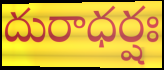
దురాధర్షః